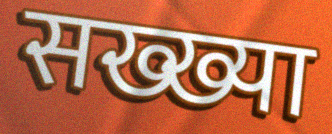
सख्ख्या